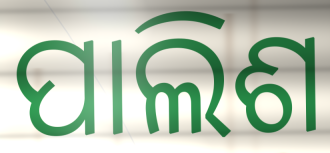
ପାଲିଶ